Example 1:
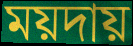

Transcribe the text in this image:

ময়দায়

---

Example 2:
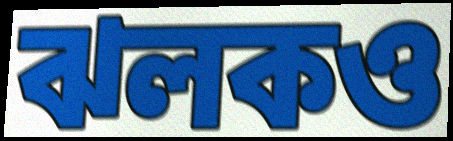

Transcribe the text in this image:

ঝলকও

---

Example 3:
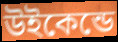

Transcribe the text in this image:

উইকেন্ডে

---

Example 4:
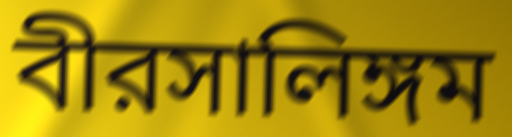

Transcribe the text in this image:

বীরসালিঙ্গম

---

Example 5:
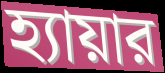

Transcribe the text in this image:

হ্যায়ার